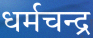
धर्मचन्द्र